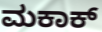
ಮಕಾಕ್